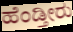
ಹೆಂಡ್ತೀರು